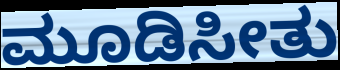
ಮೂಡಿಸೀತು